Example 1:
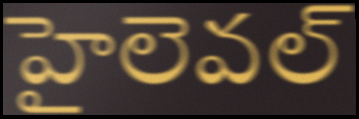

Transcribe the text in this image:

హైలెవల్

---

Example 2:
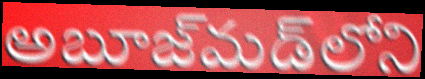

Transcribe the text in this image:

అబూజ్‌మడ్‌లోని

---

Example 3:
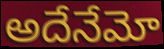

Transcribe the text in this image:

అదేనేమో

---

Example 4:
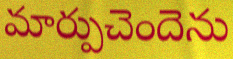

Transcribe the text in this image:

మార్పుచెందెను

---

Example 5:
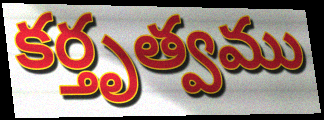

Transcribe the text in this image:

కర్తృత్వము